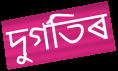
দুৰ্গতিৰ